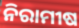
ନିରାମୀଷ